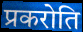
प्रकरोति